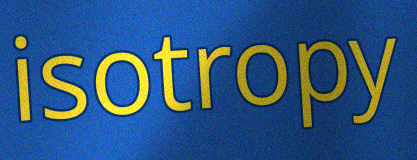
isotropy